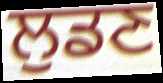
ਲੁਡਣ